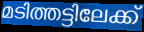
മടിത്തട്ടിലേക്ക്